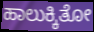
ಹಾಲುಕ್ಕಿತೋ